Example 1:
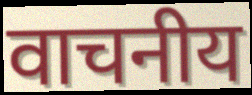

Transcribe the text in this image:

वाचनीय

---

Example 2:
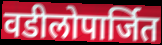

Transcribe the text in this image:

वडीलोपार्जित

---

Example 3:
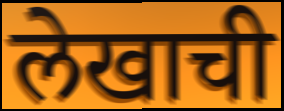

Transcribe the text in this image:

लेखाची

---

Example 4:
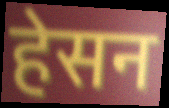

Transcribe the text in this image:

हेसन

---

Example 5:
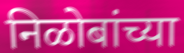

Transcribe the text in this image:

निळोबांच्या